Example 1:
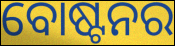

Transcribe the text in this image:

ବୋଷ୍ଟନର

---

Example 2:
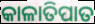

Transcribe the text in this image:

କାଳାତିପାତ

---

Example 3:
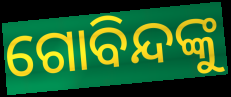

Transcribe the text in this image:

ଗୋବିନ୍ଦଙ୍କୁ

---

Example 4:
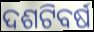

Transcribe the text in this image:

ଦଶଟିବର୍ଷ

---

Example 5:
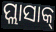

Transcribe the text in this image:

ପ୍ଲାସାକ୍